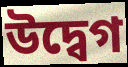
উদ্বেগ